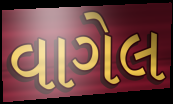
વાગેલ